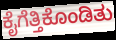
ಕೈಗೆತ್ತಿಕೊಂಡಿತು